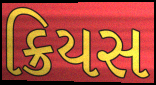
ક્રિયસ